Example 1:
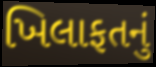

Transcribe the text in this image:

ખિલાફતનું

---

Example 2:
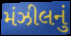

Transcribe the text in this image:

મંઝીલનું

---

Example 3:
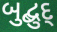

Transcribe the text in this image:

બુદ્બુદ્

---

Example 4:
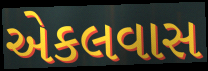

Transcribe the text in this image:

એકલવાસ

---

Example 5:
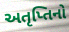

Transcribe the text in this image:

અતૃપ્તિનો